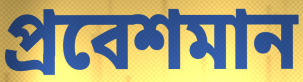
প্রবেশমান